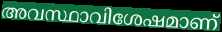
അവസ്ഥാവിശേഷമാണ്